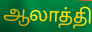
ஆலாத்தி